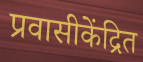
प्रवासीकेंद्रित